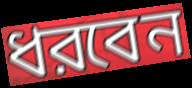
ধরবেন